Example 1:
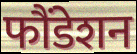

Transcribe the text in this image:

फौंडेशन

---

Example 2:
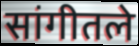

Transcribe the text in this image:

सांगीतले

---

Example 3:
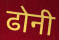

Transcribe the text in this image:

ढोनी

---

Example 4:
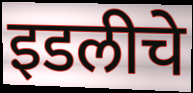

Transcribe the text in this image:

इडलीचे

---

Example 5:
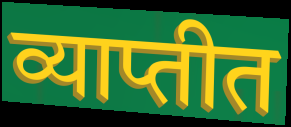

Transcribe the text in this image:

व्याप्तीत